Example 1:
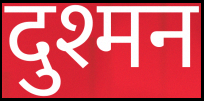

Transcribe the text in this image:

दुश्मन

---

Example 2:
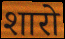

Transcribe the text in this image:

शारो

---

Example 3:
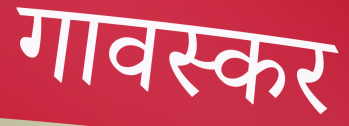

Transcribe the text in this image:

गावस्कर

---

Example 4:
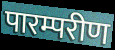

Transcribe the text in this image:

पारम्परीण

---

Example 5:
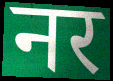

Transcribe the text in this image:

नर